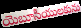
యెబూసీయులకును